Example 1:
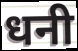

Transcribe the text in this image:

धनी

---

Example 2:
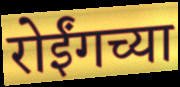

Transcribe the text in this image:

रोईंगच्या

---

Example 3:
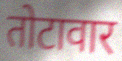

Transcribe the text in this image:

तोटावार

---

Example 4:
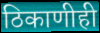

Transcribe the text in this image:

ठिकाणीही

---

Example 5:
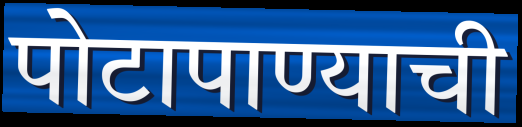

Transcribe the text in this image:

पोटापाण्याची